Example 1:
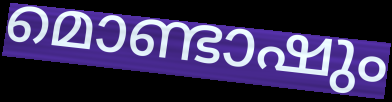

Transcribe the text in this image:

മൊണ്ടാഷും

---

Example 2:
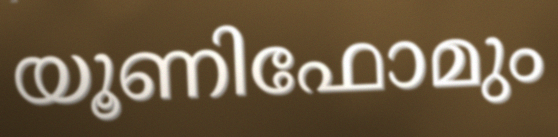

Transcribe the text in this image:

യൂണിഫോമും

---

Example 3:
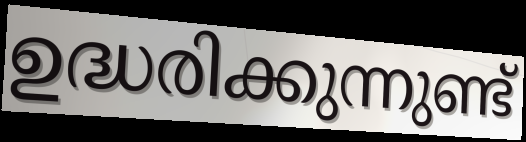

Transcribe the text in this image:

ഉദ്ധരിക്കുന്നുണ്ട്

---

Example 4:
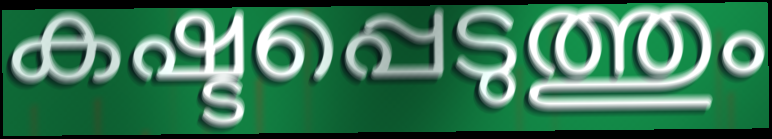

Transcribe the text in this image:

കഷ്ടപ്പെടുത്തും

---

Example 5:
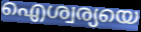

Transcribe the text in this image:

ഐശ്വര്യയെ